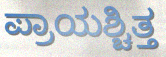
ಪ್ರಾಯಶ್ಚಿತ್ತ